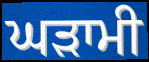
ਘੜਾਮੀ